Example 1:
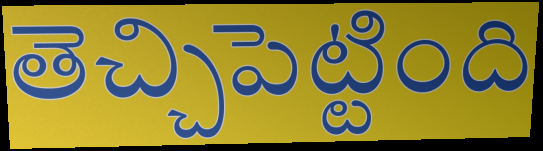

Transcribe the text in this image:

తెచ్చిపెట్టింది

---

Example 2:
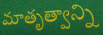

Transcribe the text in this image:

మాతృత్వాన్ని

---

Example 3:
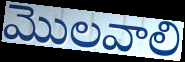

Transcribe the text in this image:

మొలవాలి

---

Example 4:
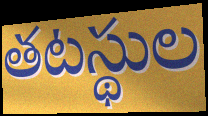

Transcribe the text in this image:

తటస్థుల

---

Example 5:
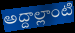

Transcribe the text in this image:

అద్దాల్లాంటి